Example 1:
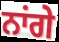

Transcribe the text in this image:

ਨਾਂਗੇ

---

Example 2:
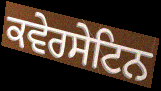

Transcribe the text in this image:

ਕਵੇਰਸੇਟਿਨ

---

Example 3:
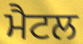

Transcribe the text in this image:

ਮੈਟਲ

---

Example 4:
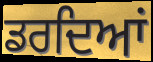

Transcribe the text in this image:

ਡਰਦਿਆਂ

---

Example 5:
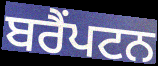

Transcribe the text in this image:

ਬਰੈੰਪਟਨ